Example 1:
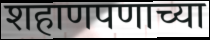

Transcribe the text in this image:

शहाणपणाच्या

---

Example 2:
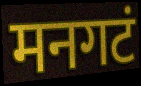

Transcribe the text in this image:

मनगटं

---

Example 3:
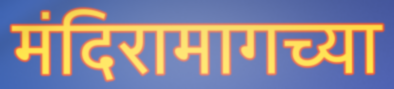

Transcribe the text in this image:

मंदिरामागच्या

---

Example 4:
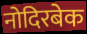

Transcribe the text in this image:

नोदिरबेक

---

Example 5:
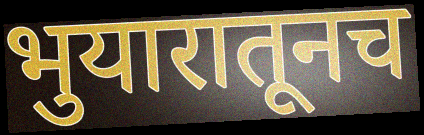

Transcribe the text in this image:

भुयारातूनच